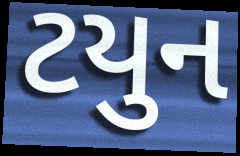
ટયુન